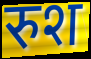
रुश